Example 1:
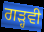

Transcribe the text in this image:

ਗੜ੍ਹਵੀ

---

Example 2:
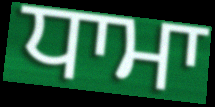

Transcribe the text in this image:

ਧਾਮਾ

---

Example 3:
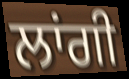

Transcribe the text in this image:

ਲਾਂਗੀ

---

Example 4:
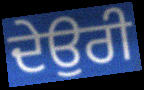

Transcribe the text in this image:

ਦੇਉਰੀ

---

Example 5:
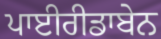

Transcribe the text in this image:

ਪਾਈਰੀਡਾਬੇਨ